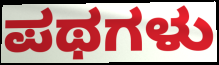
ಪಥಗಳು